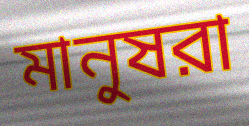
মানুষরা